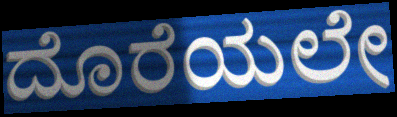
ದೊರೆಯಲೇ